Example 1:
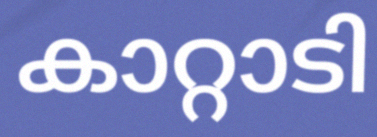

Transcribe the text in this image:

കാറ്റാടി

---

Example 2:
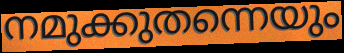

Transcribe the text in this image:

നമുക്കുതന്നെയും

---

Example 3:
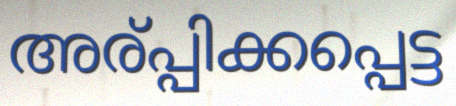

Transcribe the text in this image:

അര്പ്പിക്കപ്പെട്ട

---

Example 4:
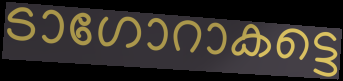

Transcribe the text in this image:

ടാഗോറാകട്ടെ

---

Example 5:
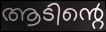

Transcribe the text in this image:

ആടിന്റെ